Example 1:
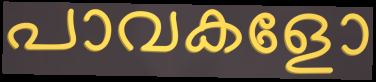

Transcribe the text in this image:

പാവകളോ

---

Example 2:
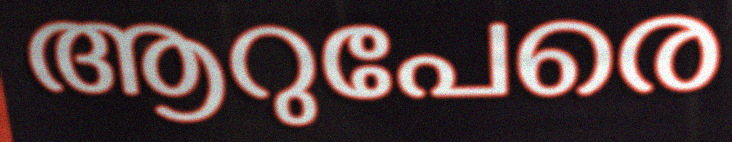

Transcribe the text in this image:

ആറുപേരെ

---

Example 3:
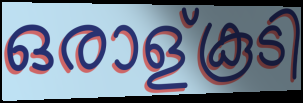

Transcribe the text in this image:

ഒരാള്കൂടി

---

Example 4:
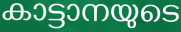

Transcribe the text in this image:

കാട്ടാനയുടെ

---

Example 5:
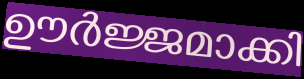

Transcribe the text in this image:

ഊർജ്ജമാക്കി